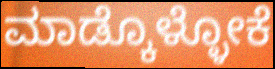
ಮಾಡ್ಕೊಳ್ಳೋಕೆ